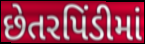
છેતરપિંડીમાં